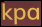
kpa